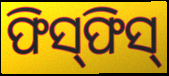
ଫିସ୍‍ଫିସ୍